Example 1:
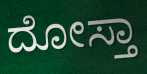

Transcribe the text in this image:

ದೋಸ್ತಾ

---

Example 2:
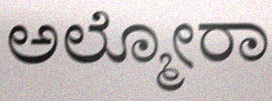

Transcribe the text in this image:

ಅಲ್ಮೋರಾ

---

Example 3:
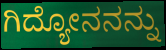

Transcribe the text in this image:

ಗಿದ್ಯೋನನನ್ನು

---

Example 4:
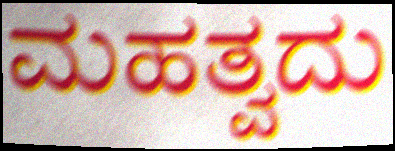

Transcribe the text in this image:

ಮಹತ್ವದು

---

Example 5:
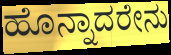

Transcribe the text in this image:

ಹೊನ್ನಾದರೇನು